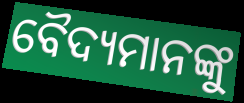
ବୈଦ୍ୟମାନଙ୍କୁ